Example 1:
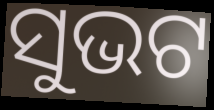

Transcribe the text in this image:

ସୁଭଟ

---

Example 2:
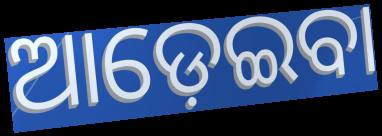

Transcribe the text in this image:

ଆଡ଼େଇବା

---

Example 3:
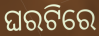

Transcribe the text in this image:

ଘରଟିରେ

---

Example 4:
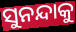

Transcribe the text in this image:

ସୁନନ୍ଦାକୁ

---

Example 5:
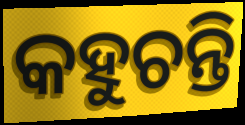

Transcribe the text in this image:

କହୁଚନ୍ତି